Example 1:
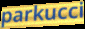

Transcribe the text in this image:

parkucci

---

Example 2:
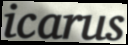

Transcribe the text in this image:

icarus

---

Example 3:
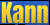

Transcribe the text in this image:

Kann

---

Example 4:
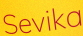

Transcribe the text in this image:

Sevika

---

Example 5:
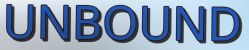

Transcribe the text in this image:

UNBOUND